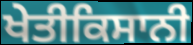
ਖੇਤੀਕਿਸਾਨੀ